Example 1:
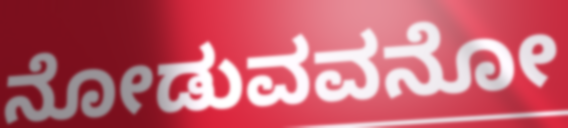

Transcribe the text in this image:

ನೋಡುವವನೋ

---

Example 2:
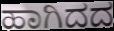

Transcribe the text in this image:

ಹಾಗಿದದ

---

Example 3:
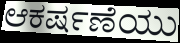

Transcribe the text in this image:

ಆಕರ್ಷಣೆಯು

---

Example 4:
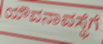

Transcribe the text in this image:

ಯೌವನಾವಸ್ಥೆಗೆ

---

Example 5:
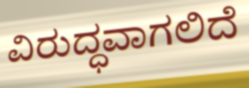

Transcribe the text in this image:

ವಿರುದ್ಧವಾಗಲಿದೆ